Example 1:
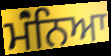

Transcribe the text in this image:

ਮੰਂਨਿਆ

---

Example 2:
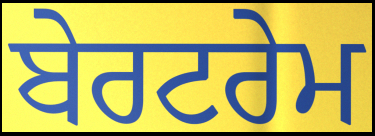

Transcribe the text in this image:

ਬੇਰਟਰੇਮ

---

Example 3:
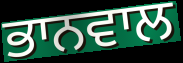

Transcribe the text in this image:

ਭਾਨਵਾਲ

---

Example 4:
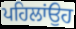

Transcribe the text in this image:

ਪਹਿਲਾਂਉਹ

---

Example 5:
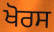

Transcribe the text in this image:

ਖੋਰਸ